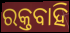
ରକ୍ତବାହି